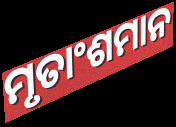
ମୃତାଂଶମାନ